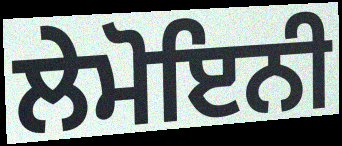
ਲੇਮੋਇਨੀ